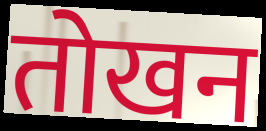
तोखन